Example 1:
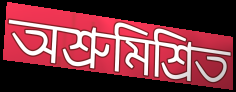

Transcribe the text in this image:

অশ্রুমিশ্রিত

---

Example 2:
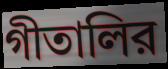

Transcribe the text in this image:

গীতালির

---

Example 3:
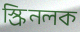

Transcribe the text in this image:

স্ক্রিনলক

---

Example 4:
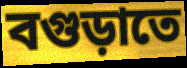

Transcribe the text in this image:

বগুড়াতে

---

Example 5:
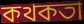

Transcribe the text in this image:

কথকতা